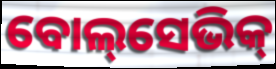
ବୋଲ୍‌ସେଭିକ୍